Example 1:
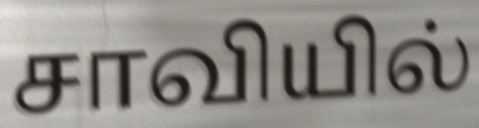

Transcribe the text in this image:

சாவியில்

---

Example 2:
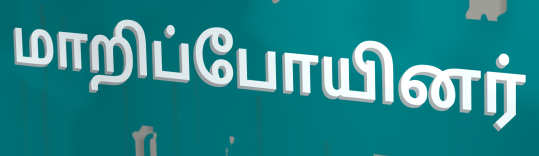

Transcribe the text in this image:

மாறிப்போயினர்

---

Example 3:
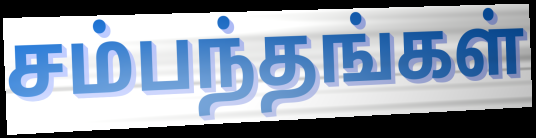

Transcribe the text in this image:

சம்பந்தங்கள்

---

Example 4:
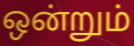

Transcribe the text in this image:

ஒன்றும்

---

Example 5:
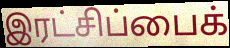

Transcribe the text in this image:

இரட்சிப்பைக்